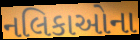
નલિકાઓના